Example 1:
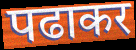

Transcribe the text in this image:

पढाकर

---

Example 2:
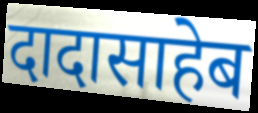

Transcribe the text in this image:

दादासाहेब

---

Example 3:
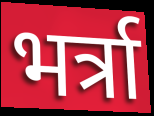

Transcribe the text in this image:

भर्त्रा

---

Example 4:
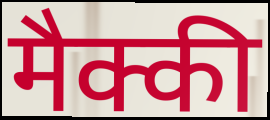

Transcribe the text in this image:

मैक्की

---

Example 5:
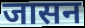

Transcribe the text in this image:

जासन